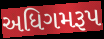
અધિગમરૂપ